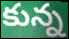
కున్న